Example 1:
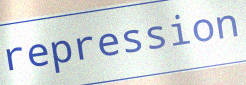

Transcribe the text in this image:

repression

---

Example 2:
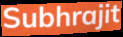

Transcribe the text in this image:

Subhrajit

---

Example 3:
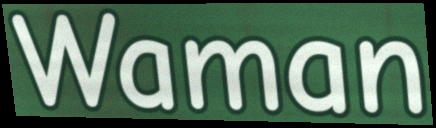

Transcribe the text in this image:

Waman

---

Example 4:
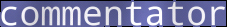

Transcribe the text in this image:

commentator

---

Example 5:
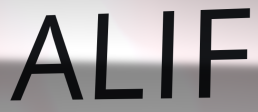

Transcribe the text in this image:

ALIF